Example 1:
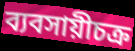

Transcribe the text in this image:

ব্যবসায়ীচক্র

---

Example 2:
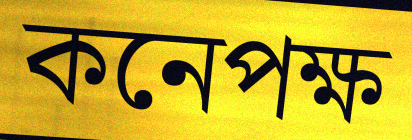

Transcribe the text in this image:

কনেপক্ষ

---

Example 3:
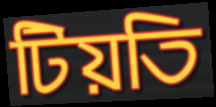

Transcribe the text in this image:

টিয়তি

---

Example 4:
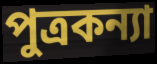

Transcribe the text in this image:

পুত্রকন্যা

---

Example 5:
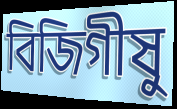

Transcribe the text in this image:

বিজিগীষু